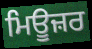
ਮਿਊਜ਼ਰ